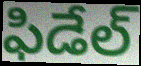
ఫిడేల్